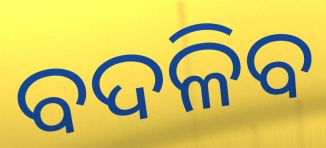
ବଦଳିବ